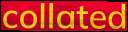
collated